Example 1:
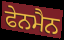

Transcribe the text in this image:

ਫੇਨਮੈਨ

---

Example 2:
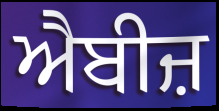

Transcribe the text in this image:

ਐਬੀਜ਼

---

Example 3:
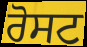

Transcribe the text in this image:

ਰੋਸਟ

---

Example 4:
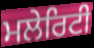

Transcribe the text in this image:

ਮਲੇਰਿਟੀ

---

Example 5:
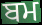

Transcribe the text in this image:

ਬਮ